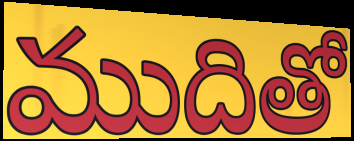
ముదితో